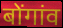
बोंगांव